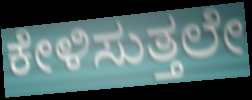
ಕೇಳಿಸುತ್ತಲೇ